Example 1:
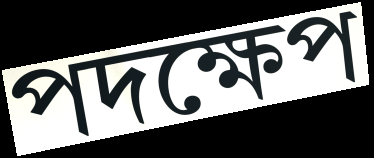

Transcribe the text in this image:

পদক্ষেপ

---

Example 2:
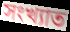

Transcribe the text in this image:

সংখ্যাত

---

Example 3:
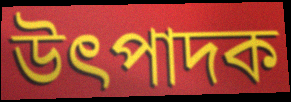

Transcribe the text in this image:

উৎপাদক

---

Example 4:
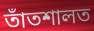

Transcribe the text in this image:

তাঁতশালত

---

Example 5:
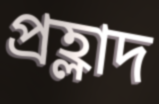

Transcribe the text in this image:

প্ৰহ্লাদ